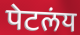
पेटलंय